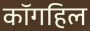
कॉगहिल